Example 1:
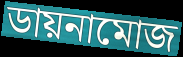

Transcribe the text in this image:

ডায়নামোজ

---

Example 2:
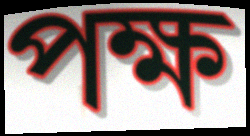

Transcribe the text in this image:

পক্ষ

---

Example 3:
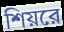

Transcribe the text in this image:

শিয়রে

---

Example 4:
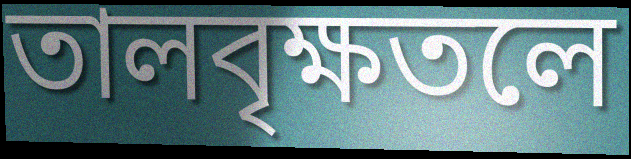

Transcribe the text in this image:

তালবৃক্ষতলে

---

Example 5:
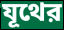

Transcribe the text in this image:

যূথের